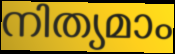
നിത്യമാം